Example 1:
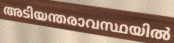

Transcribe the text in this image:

അടിയന്തരാവസ്ഥയിൽ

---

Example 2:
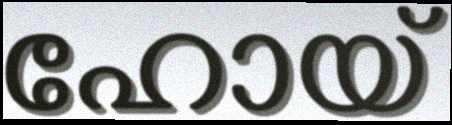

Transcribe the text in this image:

ഹോയ്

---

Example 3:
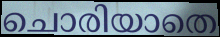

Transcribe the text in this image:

ചൊരിയാതെ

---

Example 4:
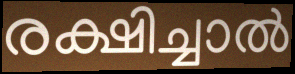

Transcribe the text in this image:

രക്ഷിച്ചാൽ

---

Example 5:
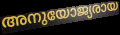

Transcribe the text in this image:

അനുയോജ്യരായ